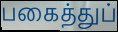
பகைத்துப்